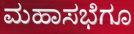
ಮಹಾಸಭೆಗೂ